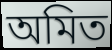
অমিত